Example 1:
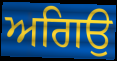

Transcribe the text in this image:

ਅਗਿਉ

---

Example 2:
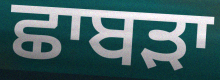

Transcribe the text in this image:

ਛਾਬੜਾ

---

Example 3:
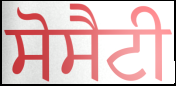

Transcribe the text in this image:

ਸੋਸੈਟੀ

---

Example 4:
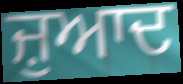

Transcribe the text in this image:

ਜ਼ੁਆਦ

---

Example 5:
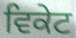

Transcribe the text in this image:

ਵਿਕੇਟ